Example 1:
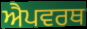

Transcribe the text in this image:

ਐਪਵਰਥ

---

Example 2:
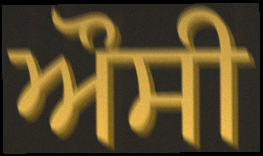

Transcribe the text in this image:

ਔਸੀ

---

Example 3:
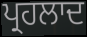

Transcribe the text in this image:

ਪ੍ਰਹਲਾਦ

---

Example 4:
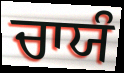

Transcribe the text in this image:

ਚਾਯੰ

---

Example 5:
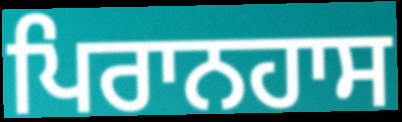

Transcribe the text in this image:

ਪਿਰਾਨਹਾਸ